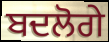
ਬਦਲੋਗੇ